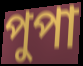
পুপা